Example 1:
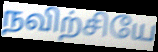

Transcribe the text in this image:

நவிற்சியே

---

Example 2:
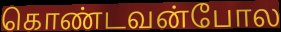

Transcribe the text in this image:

கொண்டவன்போல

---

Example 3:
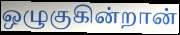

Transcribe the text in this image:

ஒழுகுகின்றான்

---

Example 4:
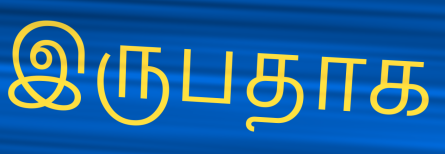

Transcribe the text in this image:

இருபதாக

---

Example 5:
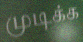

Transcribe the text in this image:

முடிக்க